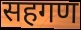
सहगण